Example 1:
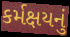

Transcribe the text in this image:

કર્મક્ષયનું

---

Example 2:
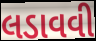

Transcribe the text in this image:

લડાવવી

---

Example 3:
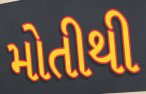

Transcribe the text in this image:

મોતીથી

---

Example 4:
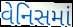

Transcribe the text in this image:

વેનિસમાં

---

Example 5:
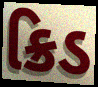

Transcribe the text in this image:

ક્રિડ